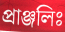
প্রাঞ্জলিঃ